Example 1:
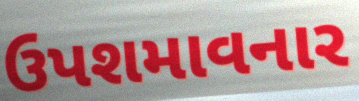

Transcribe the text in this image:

ઉપશમાવનાર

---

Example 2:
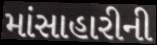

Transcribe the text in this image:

માંસાહારીની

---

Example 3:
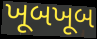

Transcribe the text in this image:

ખૂબખૂબ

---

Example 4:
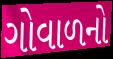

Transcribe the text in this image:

ગોવાળનો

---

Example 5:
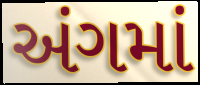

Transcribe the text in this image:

અંગમાં